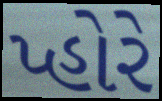
પ્હોરે